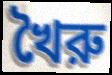
খৈরু